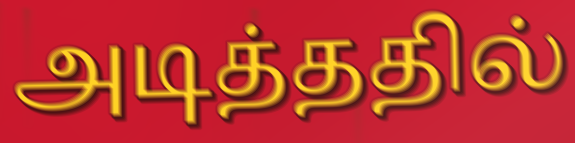
அடித்ததில்